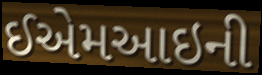
ઈએમઆઇની